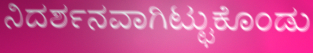
ನಿದರ್ಶನವಾಗಿಟ್ಟುಕೊಂಡು